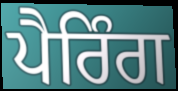
ਪੈਰਿੰਗ